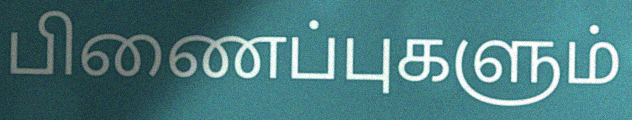
பிணைப்புகளும்